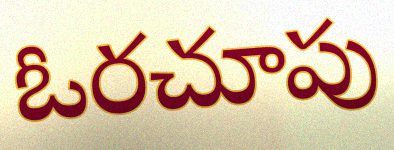
ఓరచూపు